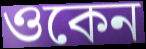
ওকেন